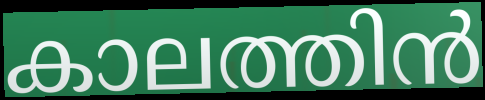
കാലത്തിൻ